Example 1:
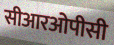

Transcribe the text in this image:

सीआरओपीसी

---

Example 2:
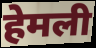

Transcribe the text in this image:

हेमली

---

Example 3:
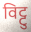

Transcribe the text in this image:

विट्टु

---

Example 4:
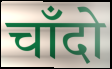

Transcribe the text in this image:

चाँदो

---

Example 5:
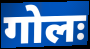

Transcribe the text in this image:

गोलः